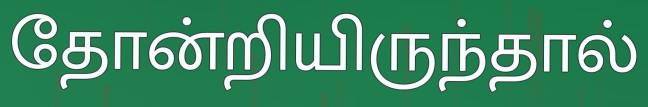
தோன்றியிருந்தால்